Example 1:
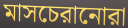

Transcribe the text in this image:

মাসচেরানোরা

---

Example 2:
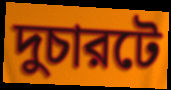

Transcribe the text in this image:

দুচারটে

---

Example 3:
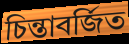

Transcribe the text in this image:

চিন্তাবর্জিত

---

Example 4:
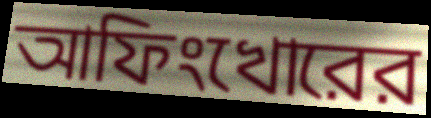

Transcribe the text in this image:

আফিংখোরের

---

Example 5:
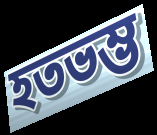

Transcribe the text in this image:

হতভম্ভ